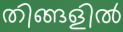
തിങ്ങളിൽ